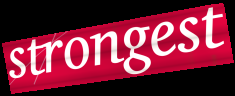
strongest